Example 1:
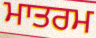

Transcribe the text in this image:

ਮਾਤਰਮ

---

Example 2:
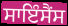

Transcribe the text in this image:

ਸਾਇੰਸੈਂਸ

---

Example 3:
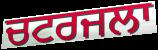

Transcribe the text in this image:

ਚਟਰਜਲਾ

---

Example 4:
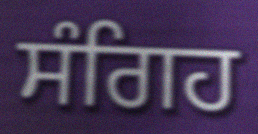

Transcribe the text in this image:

ਸੰਗਿਹ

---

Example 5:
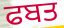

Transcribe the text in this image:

ਫਬਤ